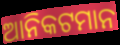
ଆନିକଟମାନ